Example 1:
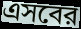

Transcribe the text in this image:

এসবের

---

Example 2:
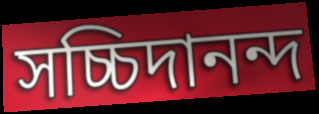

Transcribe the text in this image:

সচ্চিদানন্দ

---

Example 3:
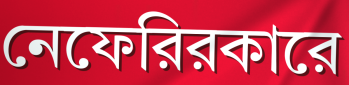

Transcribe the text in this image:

নেফেরিরকারে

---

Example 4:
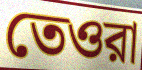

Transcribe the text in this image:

তেওরা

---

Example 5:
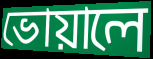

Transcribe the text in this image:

ভোয়ালে